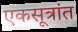
एकसूत्रांत